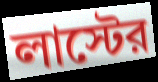
লাস্টের